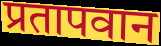
प्रतापवान